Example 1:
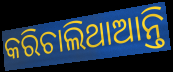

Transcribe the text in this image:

କରିଚାଲିଥାଆନ୍ତି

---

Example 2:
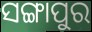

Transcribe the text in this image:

ସଙ୍ଗାପୁର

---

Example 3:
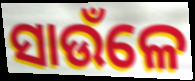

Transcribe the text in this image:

ସାଉଁଳେ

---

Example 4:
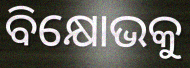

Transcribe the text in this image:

ବିକ୍ଷୋଭକୁ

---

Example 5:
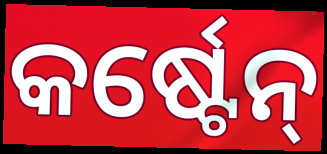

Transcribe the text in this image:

କର୍ଷ୍ଟେନ୍